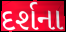
દર્શના